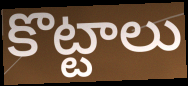
కొట్టాలు